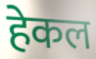
हेकल